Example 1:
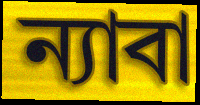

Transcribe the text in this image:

ন্যাবা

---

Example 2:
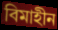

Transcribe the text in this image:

বিমাহীন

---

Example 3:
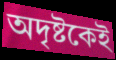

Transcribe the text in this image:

অদৃষ্টকেই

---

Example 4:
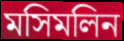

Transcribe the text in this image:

মসিমলিন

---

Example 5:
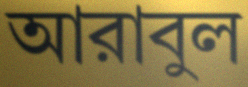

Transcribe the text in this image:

আরাবুল